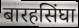
बारहसिंघा